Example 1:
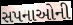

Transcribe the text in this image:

સપનાઓની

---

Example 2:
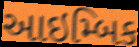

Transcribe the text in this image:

આઇમ્બિક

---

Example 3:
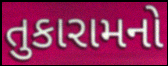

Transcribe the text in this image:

તુકારામનો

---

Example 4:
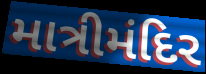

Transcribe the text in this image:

માત્રીમંદિર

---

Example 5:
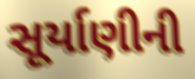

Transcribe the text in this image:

સૂર્યાણીની